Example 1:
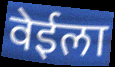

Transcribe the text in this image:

वेईला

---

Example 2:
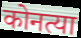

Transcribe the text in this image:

कोनत्या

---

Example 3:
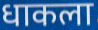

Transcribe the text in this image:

धाकला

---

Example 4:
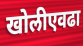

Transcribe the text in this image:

खोलीएवढा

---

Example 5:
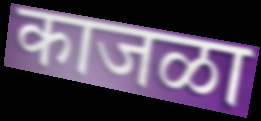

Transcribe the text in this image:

काजळा